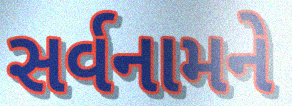
સર્વનામને